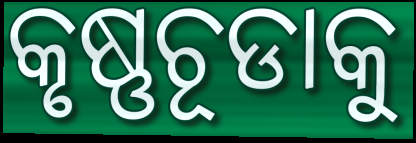
କୃଷ୍ଣଚୂଡାକୁ